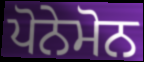
ਪੋਨੇਮੋਨ